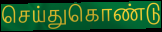
செய்துகொண்டு